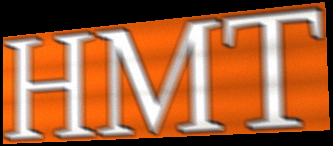
HMT